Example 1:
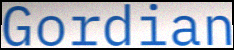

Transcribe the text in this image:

Gordian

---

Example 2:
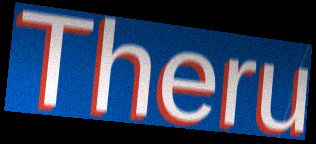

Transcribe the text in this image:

Theru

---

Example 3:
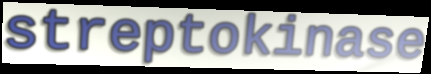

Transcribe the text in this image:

streptokinase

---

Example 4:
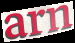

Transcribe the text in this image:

arn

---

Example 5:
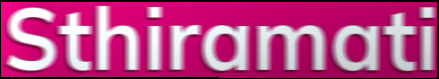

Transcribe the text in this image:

Sthiramati